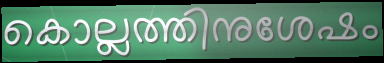
കൊല്ലത്തിനുശേഷം